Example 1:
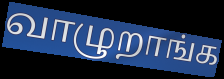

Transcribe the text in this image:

வாழுறாங்க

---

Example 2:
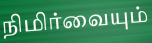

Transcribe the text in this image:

நிமிர்வையும்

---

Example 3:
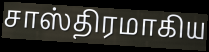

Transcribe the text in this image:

சாஸ்திரமாகிய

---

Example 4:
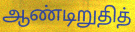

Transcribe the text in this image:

ஆண்டிறுதித்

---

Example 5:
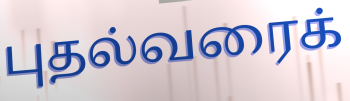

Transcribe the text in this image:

புதல்வரைக்